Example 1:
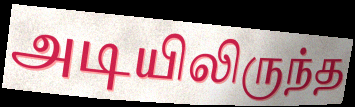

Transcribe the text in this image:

அடியிலிருந்த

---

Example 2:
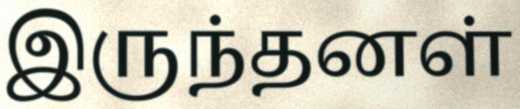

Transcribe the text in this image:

இருந்தனள்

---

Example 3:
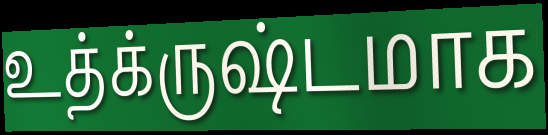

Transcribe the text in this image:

உத்க்ருஷ்டமாக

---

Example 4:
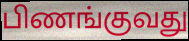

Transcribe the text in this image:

பிணங்குவது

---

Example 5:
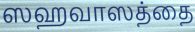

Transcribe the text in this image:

ஸஹவாஸத்தை